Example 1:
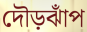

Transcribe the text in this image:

দৌড়ঝাঁপ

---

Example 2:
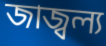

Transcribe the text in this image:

জাজ্বল্য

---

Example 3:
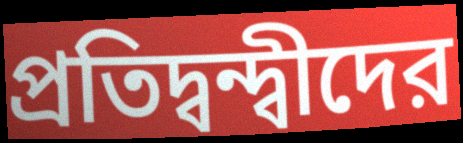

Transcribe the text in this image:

প্রতিদ্বন্দ্বীদের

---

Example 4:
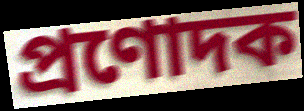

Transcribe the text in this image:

প্রণোদক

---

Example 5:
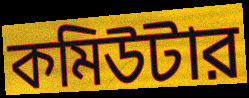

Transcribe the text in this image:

কমিউটার